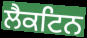
ਲੈਕਟਿਨ